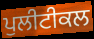
ਪੁਲੀਟੀਕਲ